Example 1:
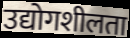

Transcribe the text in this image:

उद्योगशीलता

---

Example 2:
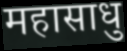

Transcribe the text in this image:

महासाधु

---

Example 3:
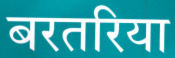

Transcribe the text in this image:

बरतरिया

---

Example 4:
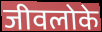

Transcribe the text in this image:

जीवलोके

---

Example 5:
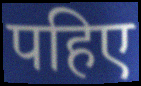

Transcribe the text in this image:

पहिए